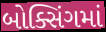
બોક્સિંગમાં